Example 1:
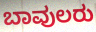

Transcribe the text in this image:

ಬಾವುಲರು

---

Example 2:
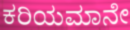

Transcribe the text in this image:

ಕರಿಯಮಾನೇ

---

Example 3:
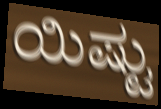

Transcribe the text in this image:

ಯಿಷ್ಟು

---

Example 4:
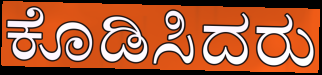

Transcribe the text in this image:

ಕೊಡಿಸಿದರು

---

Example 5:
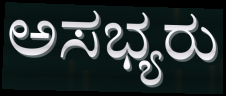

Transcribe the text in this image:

ಅಸಭ್ಯರು